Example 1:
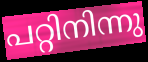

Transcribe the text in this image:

പറ്റിനിന്നു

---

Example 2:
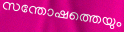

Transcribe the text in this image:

സന്തോഷത്തെയും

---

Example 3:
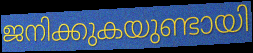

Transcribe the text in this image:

ജനിക്കുകയുണ്ടായി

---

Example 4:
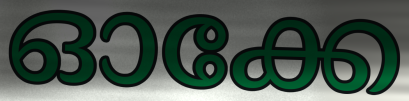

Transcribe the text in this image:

ഓക്കേ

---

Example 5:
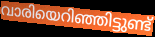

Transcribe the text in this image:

വാരിയെറിഞ്ഞിട്ടുണ്ട്